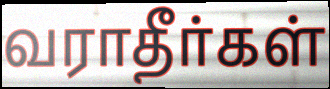
வராதீர்கள்